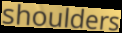
shoulders